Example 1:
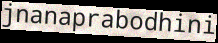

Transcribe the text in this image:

jnanaprabodhini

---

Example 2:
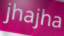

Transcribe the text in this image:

jhajha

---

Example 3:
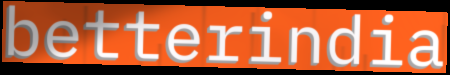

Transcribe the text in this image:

betterindia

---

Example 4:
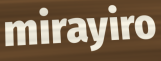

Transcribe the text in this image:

mirayiro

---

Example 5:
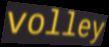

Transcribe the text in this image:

volley